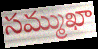
సమ్ముఖా